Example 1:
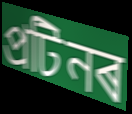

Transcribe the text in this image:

প্ৰটিনৰ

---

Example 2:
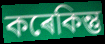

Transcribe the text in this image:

কৰেকিন্তু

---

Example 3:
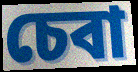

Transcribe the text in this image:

চেবা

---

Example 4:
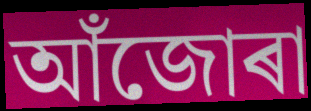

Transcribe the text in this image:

আঁজোৰা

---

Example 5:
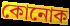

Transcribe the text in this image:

কোনোক